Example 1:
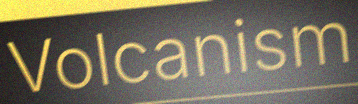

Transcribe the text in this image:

Volcanism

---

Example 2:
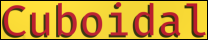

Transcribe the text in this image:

Cuboidal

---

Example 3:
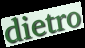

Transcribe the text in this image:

dietro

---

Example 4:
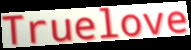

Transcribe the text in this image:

Truelove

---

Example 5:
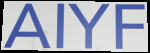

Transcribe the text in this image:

AIYF